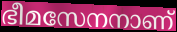
ഭീമസേനനാണ്